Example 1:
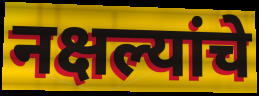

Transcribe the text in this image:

नक्षल्यांचे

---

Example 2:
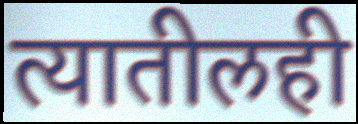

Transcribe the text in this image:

त्यातीलही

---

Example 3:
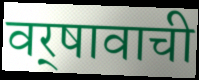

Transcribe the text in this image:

वर्षावाची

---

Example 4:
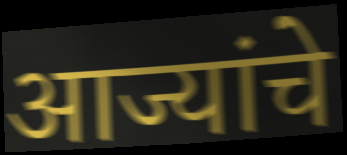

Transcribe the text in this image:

आज्यांचे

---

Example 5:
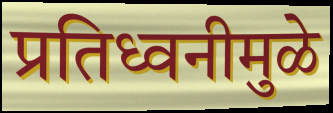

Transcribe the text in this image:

प्रतिध्वनीमुळे